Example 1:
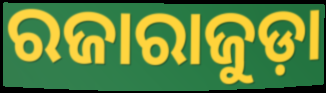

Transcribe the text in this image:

ରଜାରାଜୁଡ଼ା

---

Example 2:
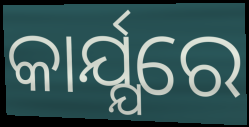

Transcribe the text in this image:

କାର୍ଯ୍ଯରେ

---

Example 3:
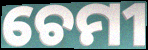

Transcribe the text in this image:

ଚେମୀ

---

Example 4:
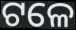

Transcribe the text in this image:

ଟଳେ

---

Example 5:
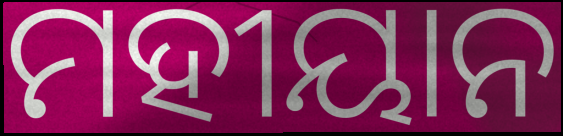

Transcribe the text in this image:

ମହୀୟାନ